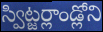
స్విట్జర్లాండ్లోని